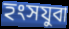
হংসযুবা